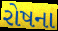
રોષના